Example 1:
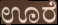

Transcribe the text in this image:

ಊರೆ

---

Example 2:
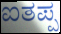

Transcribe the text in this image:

ಐತಪ್ಪ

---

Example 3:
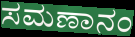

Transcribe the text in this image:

ಸಮಣಾನಂ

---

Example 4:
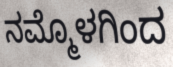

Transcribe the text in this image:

ನಮ್ಮೊಳಗಿಂದ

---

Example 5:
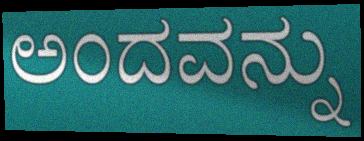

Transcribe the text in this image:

ಅಂದವನ್ನು